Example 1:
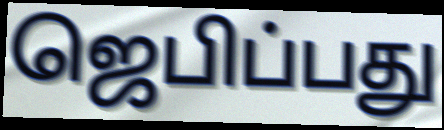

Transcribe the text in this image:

ஜெபிப்பது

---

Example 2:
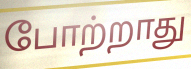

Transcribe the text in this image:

போற்றாது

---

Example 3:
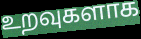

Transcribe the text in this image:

உறவுகளாக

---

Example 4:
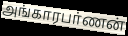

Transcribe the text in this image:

அங்காரபர்ணன்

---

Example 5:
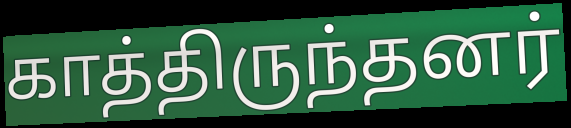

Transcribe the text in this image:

காத்திருந்தனர்